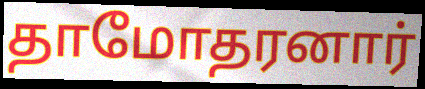
தாமோதரனார்